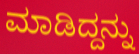
ಮಾಡಿದ್ದನ್ನು